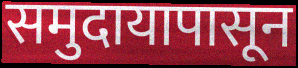
समुदायापासून